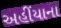
અહીંયાના